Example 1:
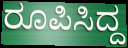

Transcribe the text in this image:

ರೂಪಿಸಿದ್ದ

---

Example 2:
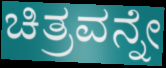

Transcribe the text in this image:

ಚಿತ್ರವನ್ನೇ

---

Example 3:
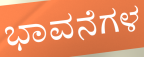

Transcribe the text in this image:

ಭಾವನೆಗಳ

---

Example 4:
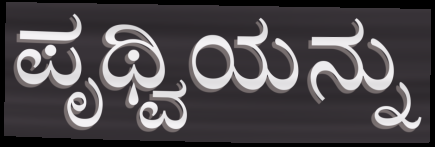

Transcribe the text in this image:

ಪೃಥ್ವಿಯನ್ನು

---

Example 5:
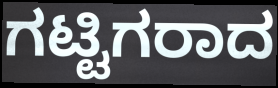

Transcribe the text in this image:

ಗಟ್ಟಿಗರಾದ